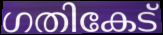
ഗതികേട്